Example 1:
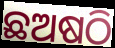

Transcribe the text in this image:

ଛଅଷଠି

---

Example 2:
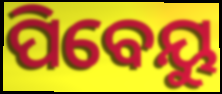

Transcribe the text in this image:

ପିବେୟୁ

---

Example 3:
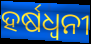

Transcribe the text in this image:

ହର୍ଷଧ୍ୱନୀ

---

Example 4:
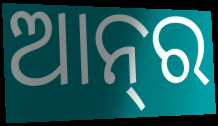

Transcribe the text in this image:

ଆନ୍‌ର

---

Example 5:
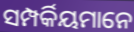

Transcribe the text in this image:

ସମ୍ପର୍କିୟମାନେ